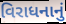
વિરાધનાનું